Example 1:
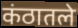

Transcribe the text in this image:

कंठातले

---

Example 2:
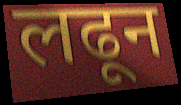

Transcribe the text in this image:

लढून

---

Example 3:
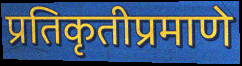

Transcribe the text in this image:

प्रतिकृतीप्रमाणे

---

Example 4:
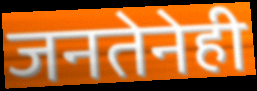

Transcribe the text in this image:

जनतेनेही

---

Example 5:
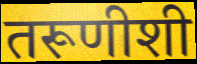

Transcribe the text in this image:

तरूणीशी